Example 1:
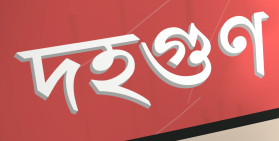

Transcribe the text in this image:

দহগুণ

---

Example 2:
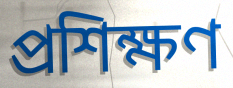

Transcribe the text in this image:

প্ৰশিক্ষণ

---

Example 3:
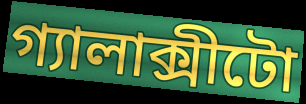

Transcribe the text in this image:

গ্যালাক্সীটো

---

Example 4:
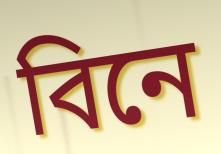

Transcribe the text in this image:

বিনে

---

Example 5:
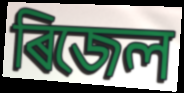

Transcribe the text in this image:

ৰিজেল